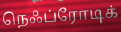
நெஃப்ரோடிக்